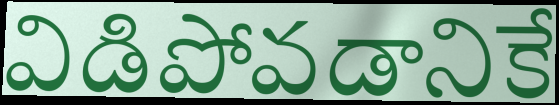
విడిపోవడానికే